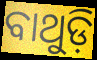
ବାଥୁଡ଼ି